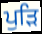
ਪੁੜਿ